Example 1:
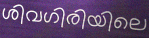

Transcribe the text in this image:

ശിവഗിരിയിലെ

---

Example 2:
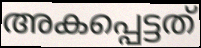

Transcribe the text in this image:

അകപ്പെട്ടത്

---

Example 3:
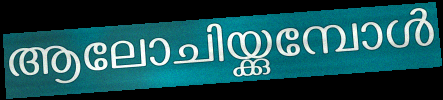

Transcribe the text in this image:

ആലോചിയ്ക്കുമ്പോൾ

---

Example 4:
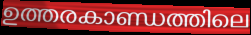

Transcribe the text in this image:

ഉത്തരകാണ്ഡത്തിലെ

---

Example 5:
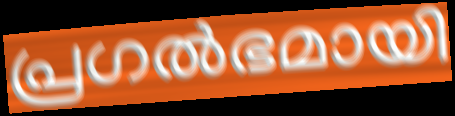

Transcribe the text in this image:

പ്രഗൽഭമായി